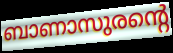
ബാണാസുരന്റെ